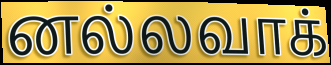
னல்லவாக்